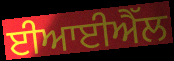
ਈਆਈਐੱਲ